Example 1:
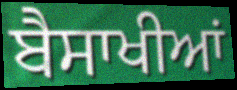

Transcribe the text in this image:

ਬੈਸਾਖੀਆਂ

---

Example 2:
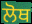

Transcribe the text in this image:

ਲੋਥ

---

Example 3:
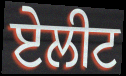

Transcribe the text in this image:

ਏਲੀਟ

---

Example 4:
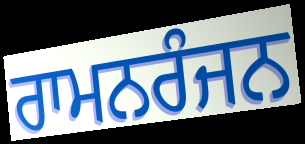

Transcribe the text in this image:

ਰਾਮਨਰੰਜਨ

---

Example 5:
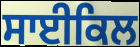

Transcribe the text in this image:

ਸਾਈਕਿਲ